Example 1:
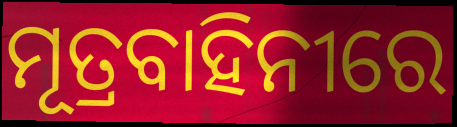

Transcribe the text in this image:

ମୂତ୍ରବାହିନୀରେ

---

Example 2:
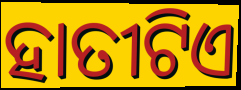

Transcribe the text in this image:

ହାତୀଟିଏ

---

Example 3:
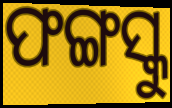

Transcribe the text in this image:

ଫଙ୍ଗସ୍କୁ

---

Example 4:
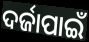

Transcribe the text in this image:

ଦର୍ଜାପାଇଁ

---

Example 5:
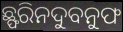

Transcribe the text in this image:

ଛ୍ଫରିନଦୁବନୁଫ